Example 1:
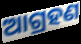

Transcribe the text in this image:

ଆଗ୍ରହଣ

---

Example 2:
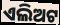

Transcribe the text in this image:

ଏଲିଅଟ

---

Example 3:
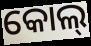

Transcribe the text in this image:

କୋଲ୍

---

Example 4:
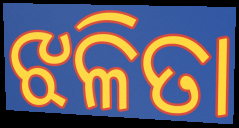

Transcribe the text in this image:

ଝଳିତା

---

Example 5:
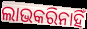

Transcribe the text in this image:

ଲାଭକରିନାହିଁ